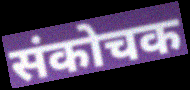
संकोचक